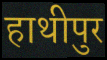
हाथीपुर